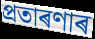
প্ৰতাৰণাৰ